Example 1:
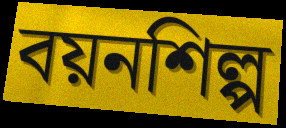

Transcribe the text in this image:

বয়নশিল্প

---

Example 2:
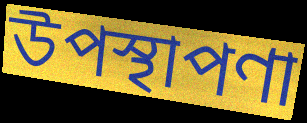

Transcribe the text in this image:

উপস্থাপণা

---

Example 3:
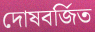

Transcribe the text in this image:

দোষবর্জিত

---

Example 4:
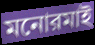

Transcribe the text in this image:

মনোরমাই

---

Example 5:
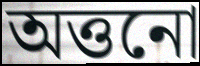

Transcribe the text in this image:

অত্তনো